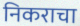
निकराचा